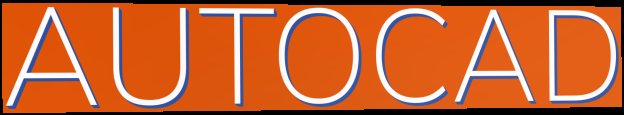
AUTOCAD